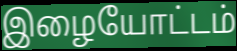
இழையோட்டம்